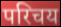
परिचय